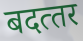
बदत्‍तर